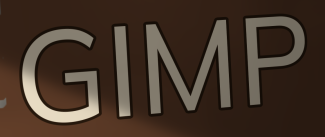
GIMP